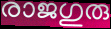
രാജഗുരു